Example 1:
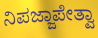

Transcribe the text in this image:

ನಿಪಜ್ಜಾಪೇತ್ವಾ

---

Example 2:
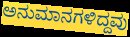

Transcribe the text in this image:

ಅನುಮಾನಗಳಿದ್ದವು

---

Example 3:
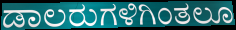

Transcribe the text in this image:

ಡಾಲರುಗಳಿಗಿಂತಲೂ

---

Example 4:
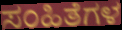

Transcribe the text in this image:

ಸಂಹಿತೆಗಳ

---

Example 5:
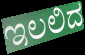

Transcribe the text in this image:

ಇಲಲಿದ